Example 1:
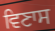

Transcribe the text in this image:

ਵਿਣਾਸ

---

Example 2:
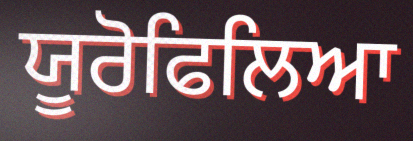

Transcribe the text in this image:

ਯੂਰੋਫਿਲਿਆ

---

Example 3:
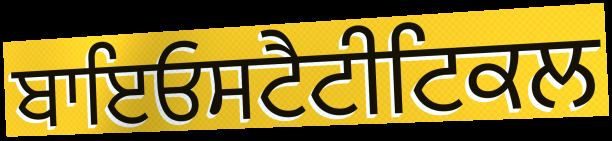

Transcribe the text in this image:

ਬਾਇਓਸਟੈਟੀਟਿਕਲ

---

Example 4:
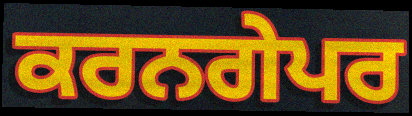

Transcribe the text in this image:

ਕਰਨਗੇਪਰ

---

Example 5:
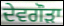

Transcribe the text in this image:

ਦੇਵਗੌੜਾ